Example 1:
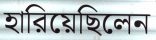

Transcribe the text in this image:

হারিয়েছিলেন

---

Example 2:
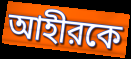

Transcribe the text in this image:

আহীরকে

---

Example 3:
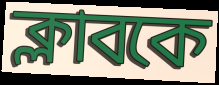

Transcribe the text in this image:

ক্লাবকে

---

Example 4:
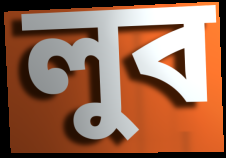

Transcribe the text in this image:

লুব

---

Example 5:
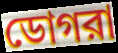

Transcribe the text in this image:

ডোগরা